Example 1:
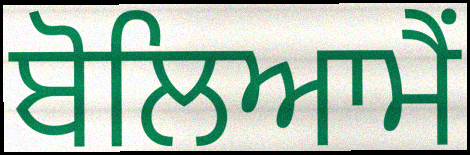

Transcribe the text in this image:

ਬੋਲਿਆਮੈਂ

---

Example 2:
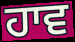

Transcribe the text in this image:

ਹਾਵ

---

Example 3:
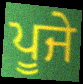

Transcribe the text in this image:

ਪੂਜੇ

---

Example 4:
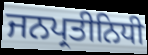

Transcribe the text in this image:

ਜਨਪ੍ਰਤੀਨਿਧੀ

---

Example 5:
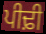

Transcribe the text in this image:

ਪੀਢ਼ੀ